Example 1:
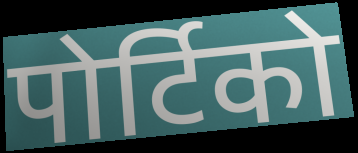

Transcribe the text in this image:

पोर्टिको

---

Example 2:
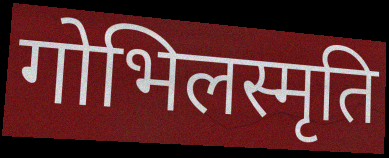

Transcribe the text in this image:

गोभिलस्मृति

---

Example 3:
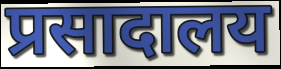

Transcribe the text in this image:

प्रसादालय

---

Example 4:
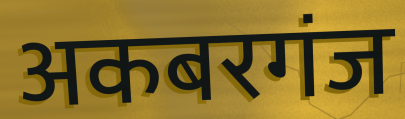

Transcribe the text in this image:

अकबरगंज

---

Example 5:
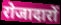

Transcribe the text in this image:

रोजादारों